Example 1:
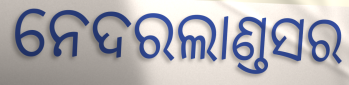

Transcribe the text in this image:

ନେଦରଲାଣ୍ଡସର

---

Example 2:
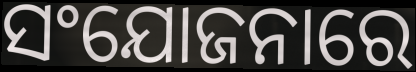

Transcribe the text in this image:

ସଂଯୋଜନାରେ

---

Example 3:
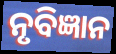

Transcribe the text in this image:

ନୃବିଜ୍ଞାନ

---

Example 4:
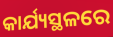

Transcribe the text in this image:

କାର୍ଯ୍ୟସ୍ଥଳରେ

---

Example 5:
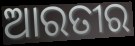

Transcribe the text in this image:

ଆରତୀର